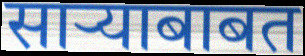
साऱ्याबाबत